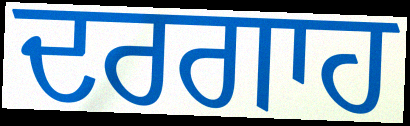
ਦਰਗਾਹ